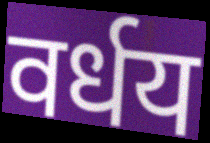
वर्धय